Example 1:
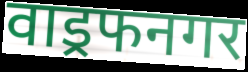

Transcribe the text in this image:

वाड्रफनगर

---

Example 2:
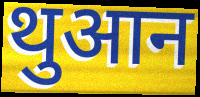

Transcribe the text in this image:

थुआन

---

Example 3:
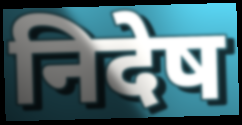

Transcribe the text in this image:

निदेष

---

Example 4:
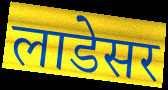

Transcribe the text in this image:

लाडेसर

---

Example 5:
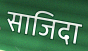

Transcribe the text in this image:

साजिदा